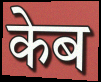
केब